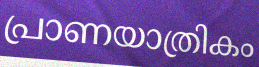
പ്രാണയാത്രികം